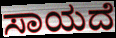
ಸಾಯದೆ